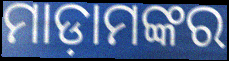
ମାଡ଼ାମଙ୍କର